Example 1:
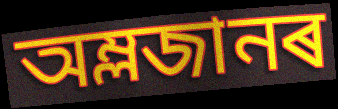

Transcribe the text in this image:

অম্লজানৰ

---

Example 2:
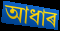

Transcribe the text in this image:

আধাৰ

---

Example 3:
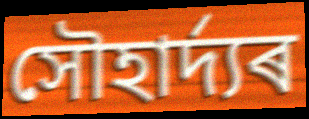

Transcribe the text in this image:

সৌহাৰ্দ্যৰ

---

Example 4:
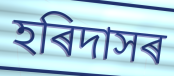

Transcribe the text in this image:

হৰিদাসৰ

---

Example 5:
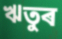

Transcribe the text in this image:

ঋতুৰ